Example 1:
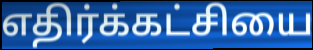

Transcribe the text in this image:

எதிர்க்கட்சியை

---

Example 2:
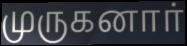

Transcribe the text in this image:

முருகனார்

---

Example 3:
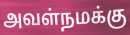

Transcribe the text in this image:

அவள்நமக்கு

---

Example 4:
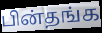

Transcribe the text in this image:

பின்தங்க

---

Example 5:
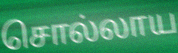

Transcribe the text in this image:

சொல்லாய